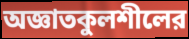
অজ্ঞাতকুলশীলের